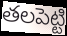
తలపెట్టి